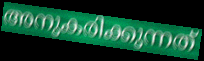
അനുകരിക്കുന്നത്